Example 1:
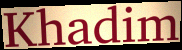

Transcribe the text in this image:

Khadim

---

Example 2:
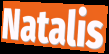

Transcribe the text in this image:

Natalis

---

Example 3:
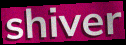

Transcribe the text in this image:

shiver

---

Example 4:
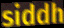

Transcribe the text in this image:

siddh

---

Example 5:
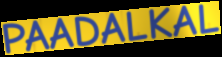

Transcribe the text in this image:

PAADALKAL